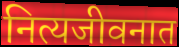
नित्यजीवनात